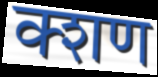
क्शण